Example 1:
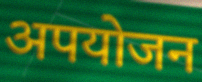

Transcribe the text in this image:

अपयोजन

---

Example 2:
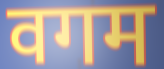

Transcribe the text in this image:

वगम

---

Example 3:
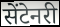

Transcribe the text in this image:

सेंटेनरी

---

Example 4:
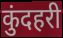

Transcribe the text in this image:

कुंदहरी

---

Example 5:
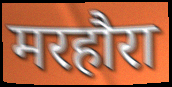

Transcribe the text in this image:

मरहौरा